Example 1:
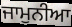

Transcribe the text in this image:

ਜਾਮੁਨੀਆ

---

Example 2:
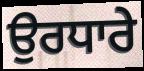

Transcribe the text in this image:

ਉਰਧਾਰੇ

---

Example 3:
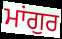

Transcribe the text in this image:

ਮਾਂਗੁਰ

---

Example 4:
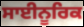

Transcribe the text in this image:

ਸਾਈਨੂਰਿਕ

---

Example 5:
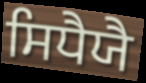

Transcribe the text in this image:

ਸਿਧੈਯੈ